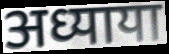
अध्याया